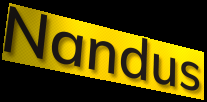
Nandus